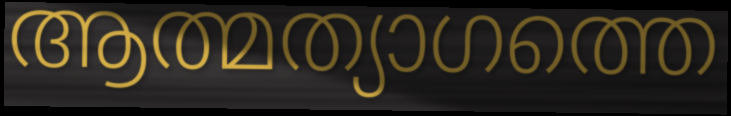
ആത്മത്യാഗത്തെ